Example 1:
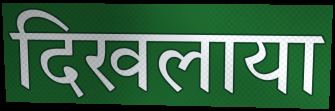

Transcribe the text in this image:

दिखलाया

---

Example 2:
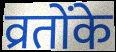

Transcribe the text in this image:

व्रतोंके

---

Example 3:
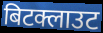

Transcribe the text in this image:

बिटक्लाउट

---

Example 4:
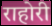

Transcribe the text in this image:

राहोरी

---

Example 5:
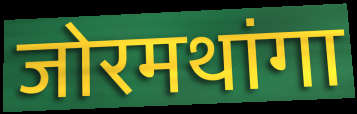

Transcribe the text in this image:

जोरमथांगा